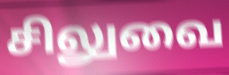
சிலுவை